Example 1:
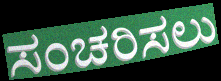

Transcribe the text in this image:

ಸಂಚರಿಸಲು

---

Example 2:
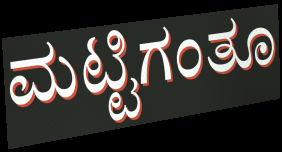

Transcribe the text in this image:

ಮಟ್ಟಿಗಂತೂ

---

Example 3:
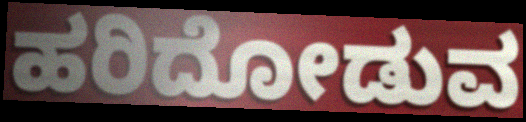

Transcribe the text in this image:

ಹರಿದೋಡುವ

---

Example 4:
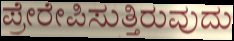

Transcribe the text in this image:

ಪ್ರೇರೇಪಿಸುತ್ತಿರುವುದು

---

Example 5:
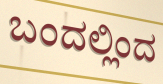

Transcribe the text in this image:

ಬಂದಲ್ಲಿಂದ